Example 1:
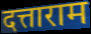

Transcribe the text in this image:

दत्ताराम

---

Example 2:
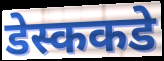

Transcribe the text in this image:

डेस्ककडे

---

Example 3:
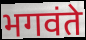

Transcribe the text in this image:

भगवंते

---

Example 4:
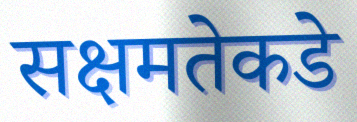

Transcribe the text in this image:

सक्षमतेकडे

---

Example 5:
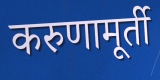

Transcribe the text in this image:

करुणामूर्ती